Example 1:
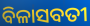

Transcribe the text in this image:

ବିଳାସବତୀ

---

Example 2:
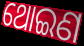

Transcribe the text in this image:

ଥୋଇଣ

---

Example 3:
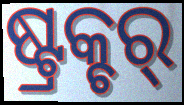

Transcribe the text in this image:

ଷ୍ଟ୍ରକ୍ଚର୍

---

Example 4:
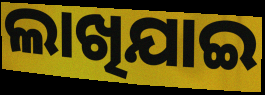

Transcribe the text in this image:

ଲାଖିଯାଇ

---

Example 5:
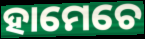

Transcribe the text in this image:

ହାମେଚେ